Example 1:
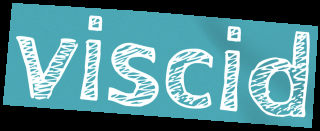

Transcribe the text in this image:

viscid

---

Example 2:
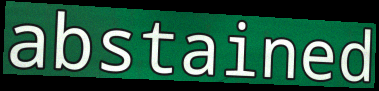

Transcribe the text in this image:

abstained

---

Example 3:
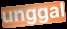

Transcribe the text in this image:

unggal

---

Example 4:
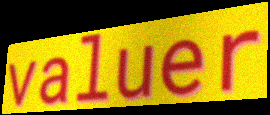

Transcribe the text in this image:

valuer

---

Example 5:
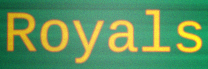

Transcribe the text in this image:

Royals